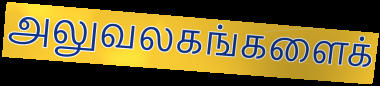
அலுவலகங்களைக்